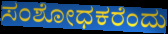
ಸಂಶೋಧಕರೆಂದು